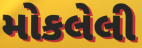
મોકલેલી